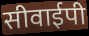
सीवाईपी